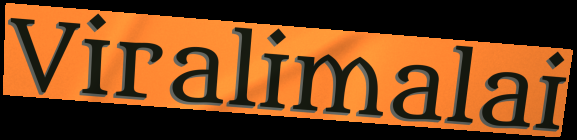
Viralimalai